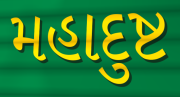
મહાદુષ્ટ